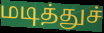
மடித்துச்